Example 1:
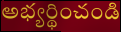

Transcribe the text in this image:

అభ్యర్థించండి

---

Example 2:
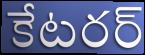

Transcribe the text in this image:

కేటరర్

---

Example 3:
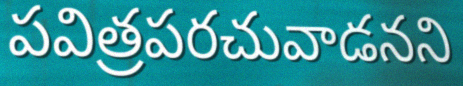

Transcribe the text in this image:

పవిత్రపరచువాడనని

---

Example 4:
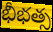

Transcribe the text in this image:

భీభత్స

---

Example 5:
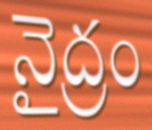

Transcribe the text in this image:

నైద్రం